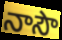
నాసౌ